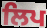
ਲਿਪ